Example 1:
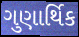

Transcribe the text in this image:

ગુણાર્થિક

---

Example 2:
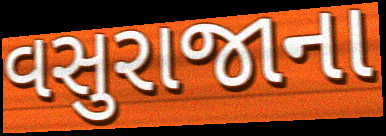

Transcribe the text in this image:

વસુરાજાના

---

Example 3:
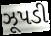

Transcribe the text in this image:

ઝૂપડી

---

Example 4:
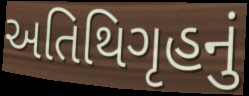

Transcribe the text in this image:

અતિથિગૃહનું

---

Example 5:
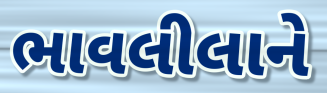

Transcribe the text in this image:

ભાવલીલાને